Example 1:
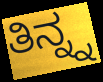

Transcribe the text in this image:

ತಿನ್ನ್ನ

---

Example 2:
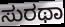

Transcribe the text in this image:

ಸುರಥಾ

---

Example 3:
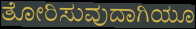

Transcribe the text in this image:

ತೋರಿಸುವುದಾಗಿಯೂ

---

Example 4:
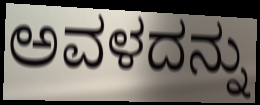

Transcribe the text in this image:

ಅವಳದನ್ನು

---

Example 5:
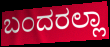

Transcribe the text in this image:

ಬಂದರಲ್ಲಾ